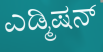
ಎಡ್ಮಿಷನ್